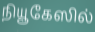
நியூகேஸில்